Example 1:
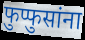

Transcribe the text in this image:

फुप्फुसांना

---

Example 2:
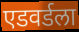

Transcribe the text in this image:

एडवर्डला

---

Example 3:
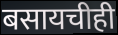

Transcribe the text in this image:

बसायचीही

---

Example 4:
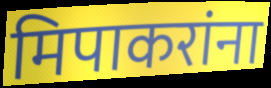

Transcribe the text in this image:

मिपाकरांना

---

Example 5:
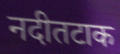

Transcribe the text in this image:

नदीतटाक